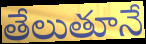
తేలుతూనే